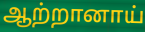
ஆற்றானாய்